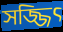
সজ্জিৎ